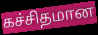
கச்சிதமான